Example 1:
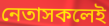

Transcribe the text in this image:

নেতাসকলেই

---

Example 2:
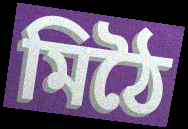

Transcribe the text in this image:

মিঠৈ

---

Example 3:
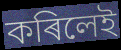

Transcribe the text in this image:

কৰিলেই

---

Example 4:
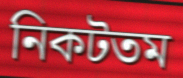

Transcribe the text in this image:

নিকটতম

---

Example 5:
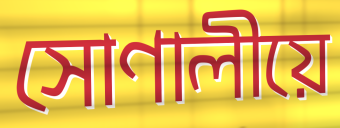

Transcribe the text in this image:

সোণালীয়ে